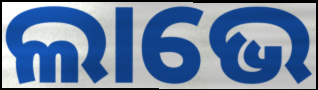
ଲାଭେ